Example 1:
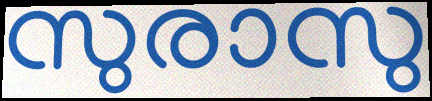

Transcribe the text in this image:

സുരാസു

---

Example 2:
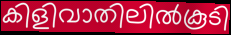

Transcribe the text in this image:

കിളിവാതിലിൽകൂടി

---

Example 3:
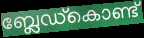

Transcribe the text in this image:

ബ്ലേഡ്കൊണ്ട്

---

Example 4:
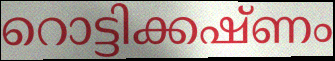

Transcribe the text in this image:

റൊട്ടിക്കഷ്ണം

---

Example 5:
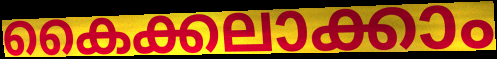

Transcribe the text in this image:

കൈക്കലാക്കാം